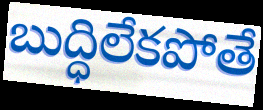
బుద్ధిలేకపోతే